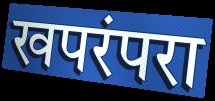
खपरंपरा